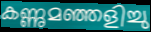
കണ്ണുമഞ്ഞളിച്ചു